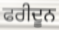
ਫਰੀਦੂਨ